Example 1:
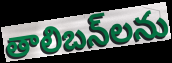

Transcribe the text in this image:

తాలిబన్‌లను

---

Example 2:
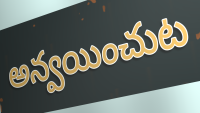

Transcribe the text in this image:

అన్వయించుట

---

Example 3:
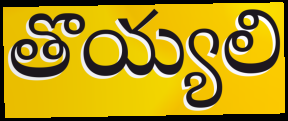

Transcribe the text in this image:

తొయ్యలి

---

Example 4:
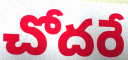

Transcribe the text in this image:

చోదరే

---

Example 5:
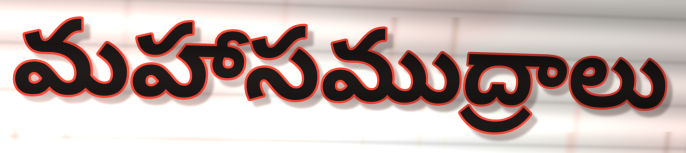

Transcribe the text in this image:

మహాసముద్రాలు